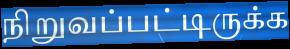
நிறுவப்பட்டிருக்க